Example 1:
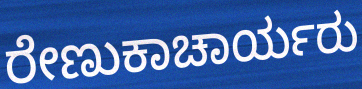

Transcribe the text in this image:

ರೇಣುಕಾಚಾರ್ಯರು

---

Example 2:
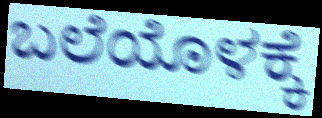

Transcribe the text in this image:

ಬಲೆಯೊಳಕ್ಕೆ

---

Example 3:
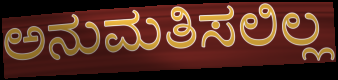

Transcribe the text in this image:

ಅನುಮತಿಸಲಿಲ್ಲ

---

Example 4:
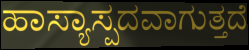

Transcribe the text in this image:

ಹಾಸ್ಯಾಸ್ಪದವಾಗುತ್ತದೆ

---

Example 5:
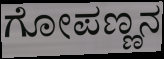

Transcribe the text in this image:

ಗೋಪಣ್ಣನ